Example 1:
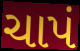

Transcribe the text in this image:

ચાપં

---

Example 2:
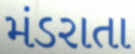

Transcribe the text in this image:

મંડરાતા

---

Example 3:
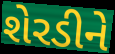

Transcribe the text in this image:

શેરડીને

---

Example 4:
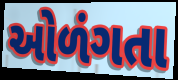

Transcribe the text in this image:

ઓળંગતા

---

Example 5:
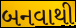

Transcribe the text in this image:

બનવાથી